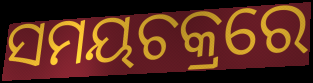
ସମୟଚକ୍ରରେ